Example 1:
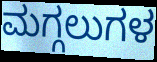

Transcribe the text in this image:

ಮಗ್ಗಲುಗಳ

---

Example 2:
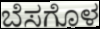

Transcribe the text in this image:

ಬೆಸಗೊಳ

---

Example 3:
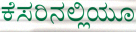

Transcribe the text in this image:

ಕೆಸರಿನಲ್ಲಿಯೂ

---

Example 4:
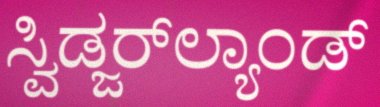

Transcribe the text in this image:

ಸ್ವಿಡ್ಜರ್‌ಲ್ಯಾಂಡ್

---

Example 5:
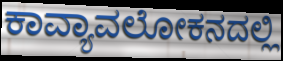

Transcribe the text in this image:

ಕಾವ್ಯಾವಲೋಕನದಲ್ಲಿ